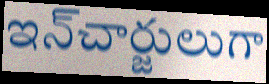
ఇన్‌చార్జులుగా